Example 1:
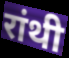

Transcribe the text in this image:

रांथी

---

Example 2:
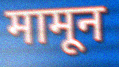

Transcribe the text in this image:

मामून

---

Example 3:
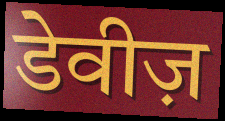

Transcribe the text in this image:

डेवीज़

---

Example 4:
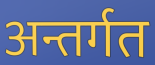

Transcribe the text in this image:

अन्तर्गत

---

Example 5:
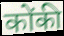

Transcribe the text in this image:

कोंकी